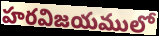
హరవిజయములో